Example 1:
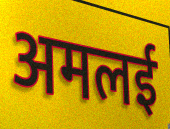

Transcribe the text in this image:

अमलई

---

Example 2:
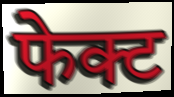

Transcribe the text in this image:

फेक्ट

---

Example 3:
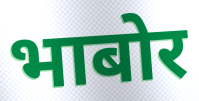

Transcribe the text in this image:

भाबोर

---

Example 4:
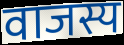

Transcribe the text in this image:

वाजस्य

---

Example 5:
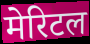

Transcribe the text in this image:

मेरिटल